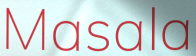
Masala